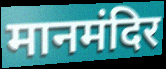
मानमंदिर